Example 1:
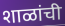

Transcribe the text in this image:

शाळांची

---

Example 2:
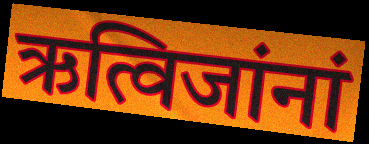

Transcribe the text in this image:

ऋत्विजांनां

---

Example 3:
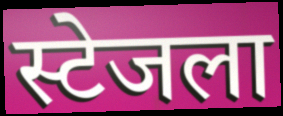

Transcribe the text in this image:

स्टेजला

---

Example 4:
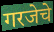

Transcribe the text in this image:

गरजेचे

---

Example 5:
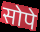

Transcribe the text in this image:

सोपे